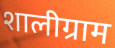
शालीग्राम